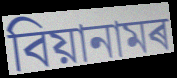
বিয়ানামৰ